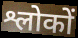
श्लोकों